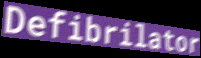
Defibrilator